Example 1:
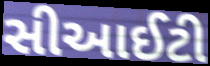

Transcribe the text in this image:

સીઆઈટી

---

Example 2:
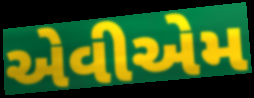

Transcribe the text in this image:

એવીએમ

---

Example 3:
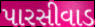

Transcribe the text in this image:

પારસીવાડ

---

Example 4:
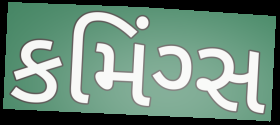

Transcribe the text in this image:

કમિંગ્સ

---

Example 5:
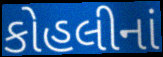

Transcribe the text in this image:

કોહલીનાં